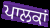
ਪਾਲਕਾਂ